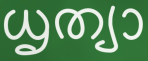
ധൃത്യാ